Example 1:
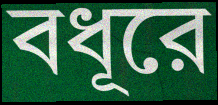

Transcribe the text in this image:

বধূরে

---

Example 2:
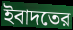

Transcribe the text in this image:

ইবাদতের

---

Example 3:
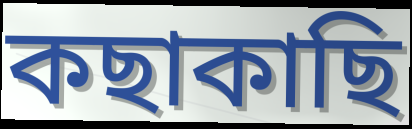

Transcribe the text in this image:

কছাকাছি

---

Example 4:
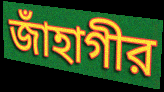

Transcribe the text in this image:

জাঁহাগীর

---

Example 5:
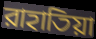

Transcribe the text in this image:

রাহাতিয়া